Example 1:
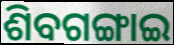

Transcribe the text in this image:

ଶିବଗଙ୍ଗାଇ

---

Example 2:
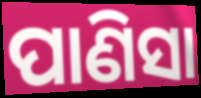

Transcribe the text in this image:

ପାଣିସା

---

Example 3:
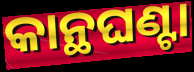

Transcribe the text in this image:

କାନ୍ଥଘଣ୍ଟା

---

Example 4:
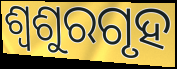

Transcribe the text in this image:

ଶ୍ୱଶୁରଗୃହ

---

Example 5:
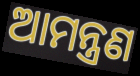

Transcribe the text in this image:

ଆମନ୍ତ୍ରଣ